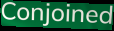
Conjoined